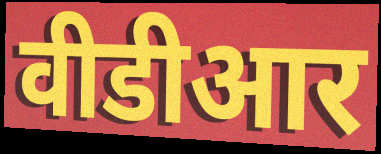
वीडीआर